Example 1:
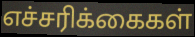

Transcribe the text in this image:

எச்சரிக்கைகள்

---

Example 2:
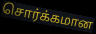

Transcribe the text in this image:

சொர்க்கமான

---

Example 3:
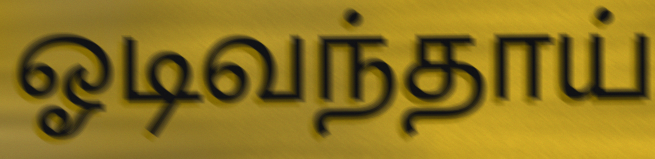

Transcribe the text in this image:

ஓடிவந்தாய்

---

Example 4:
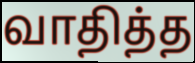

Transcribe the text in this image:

வாதித்த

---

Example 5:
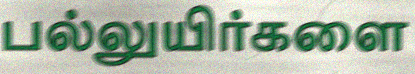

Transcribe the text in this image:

பல்லுயிர்களை